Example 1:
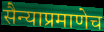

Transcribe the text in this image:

सैन्याप्रमाणेच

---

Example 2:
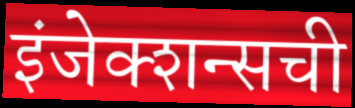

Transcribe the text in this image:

इंजेक्शन्सची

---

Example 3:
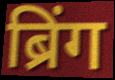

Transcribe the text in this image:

ब्रिंग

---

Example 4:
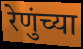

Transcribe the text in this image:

रेणुंच्या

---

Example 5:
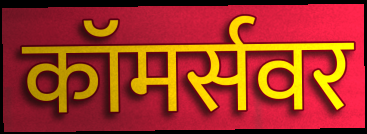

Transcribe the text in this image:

कॉमर्सवर